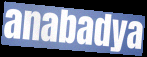
anabadya